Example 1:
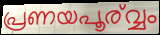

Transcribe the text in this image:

പ്രണയപൂര്വ്വം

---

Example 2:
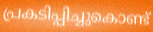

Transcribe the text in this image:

പ്രകടിപ്പിച്ചുകൊണ്ട്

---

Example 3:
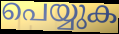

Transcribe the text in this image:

പെയ്യുക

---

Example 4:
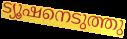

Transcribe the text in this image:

ട്യൂഷനെടുത്തു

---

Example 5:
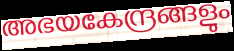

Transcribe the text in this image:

അഭയകേന്ദ്രങ്ങളും